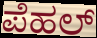
ಪೆಹಲ್